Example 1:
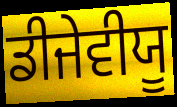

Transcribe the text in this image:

ਡੀਜੇਵੀਯੂ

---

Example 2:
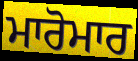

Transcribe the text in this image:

ਮਾਰੋਮਾਰ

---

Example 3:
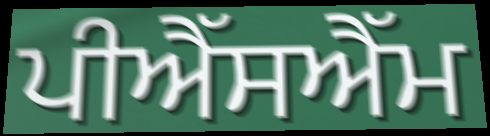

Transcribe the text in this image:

ਪੀਐੱਸਐੱਮ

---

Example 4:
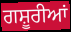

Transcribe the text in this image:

ਗਸ਼ੂਰੀਆਂ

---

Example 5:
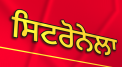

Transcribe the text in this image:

ਸਿਟਰੋਨੇਲਾ